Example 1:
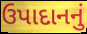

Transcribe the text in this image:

ઉપાદાનનું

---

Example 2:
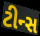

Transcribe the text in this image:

ટીન્સ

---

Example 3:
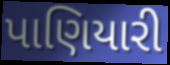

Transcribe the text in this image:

પાણિયારી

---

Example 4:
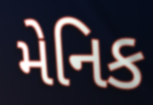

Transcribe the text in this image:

મેનિક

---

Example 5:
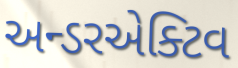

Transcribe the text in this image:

અન્ડરએક્ટિવ